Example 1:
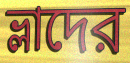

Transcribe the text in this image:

ভ্লাদের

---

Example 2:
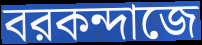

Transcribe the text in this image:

বরকন্দাজে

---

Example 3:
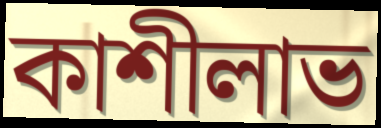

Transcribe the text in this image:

কাশীলাভ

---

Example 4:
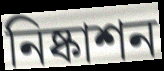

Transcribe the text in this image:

নিষ্কাশন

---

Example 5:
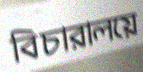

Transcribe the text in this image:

বিচারালয়ে